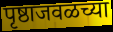
पृष्ठाजवळच्या